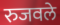
रुजवले